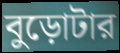
বুড়োটার